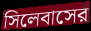
সিলেবাসের